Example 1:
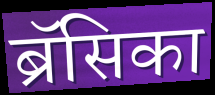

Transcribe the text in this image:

ब्रॅसिका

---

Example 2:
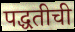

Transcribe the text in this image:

पद्धतीची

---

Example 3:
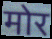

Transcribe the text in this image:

मोर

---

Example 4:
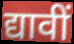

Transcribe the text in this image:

द्यावीं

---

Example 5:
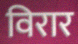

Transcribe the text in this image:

विरार